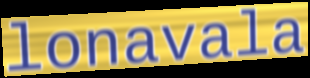
lonavala